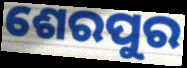
ଶେରପୁର